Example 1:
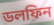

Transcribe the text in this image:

ডলফিন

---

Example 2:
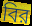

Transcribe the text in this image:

বির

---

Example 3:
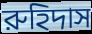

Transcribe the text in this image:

রুহিদাস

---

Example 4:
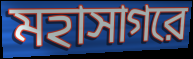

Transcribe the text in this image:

মহাসাগরে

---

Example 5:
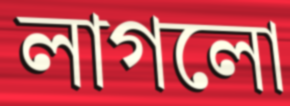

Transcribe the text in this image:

লাগলো